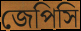
জেপিসি